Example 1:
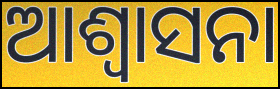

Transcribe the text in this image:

ଆଶ୍ଵାସନା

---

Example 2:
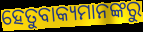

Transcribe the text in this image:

ହେତୁବାକ୍ୟମାନଙ୍କରୁ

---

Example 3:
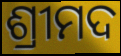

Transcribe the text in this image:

ଶ୍ରୀମଦ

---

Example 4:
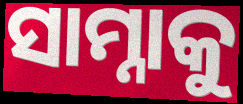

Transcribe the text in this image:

ସାମ୍ନାକୁ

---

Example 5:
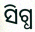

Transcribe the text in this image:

ସିଗ୍ଧ